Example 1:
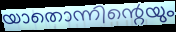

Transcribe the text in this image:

യാതൊന്നിന്റെയും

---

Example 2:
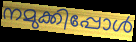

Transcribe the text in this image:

നമുക്കിപ്പോൾ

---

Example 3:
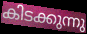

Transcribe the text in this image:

കിടക്കുന്നു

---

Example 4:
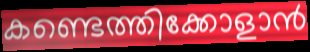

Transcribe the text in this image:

കണ്ടെത്തിക്കോളാൻ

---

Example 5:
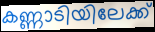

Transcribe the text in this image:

കണ്ണാടിയിലേക്ക്